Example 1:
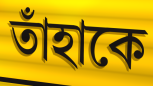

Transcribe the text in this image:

তাঁহাকে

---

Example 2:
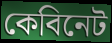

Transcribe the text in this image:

কেবিনেট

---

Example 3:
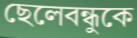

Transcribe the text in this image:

ছেলেবন্ধুকে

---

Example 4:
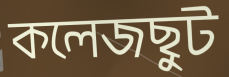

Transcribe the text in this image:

কলেজছুট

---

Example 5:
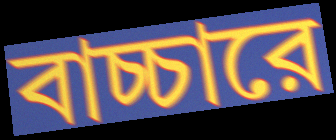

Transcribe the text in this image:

বাচ্চারে